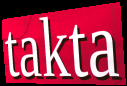
takta